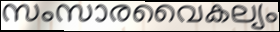
സംസാരവൈകല്യം